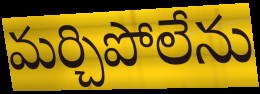
మర్చిపోలేను